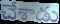
చేశాడు